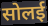
सोलई